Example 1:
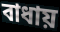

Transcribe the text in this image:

বাধায়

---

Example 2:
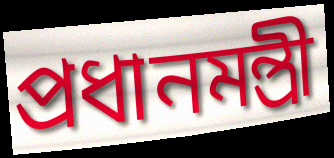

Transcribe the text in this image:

প্রধানমন্ত্রী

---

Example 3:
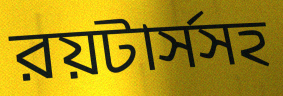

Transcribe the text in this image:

রয়টার্সসহ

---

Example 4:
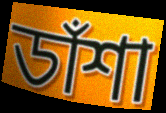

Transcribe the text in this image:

ডাঁশা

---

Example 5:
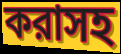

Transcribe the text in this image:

করাসহ